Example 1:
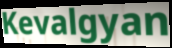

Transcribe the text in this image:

Kevalgyan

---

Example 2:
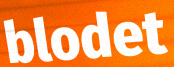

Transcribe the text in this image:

blodet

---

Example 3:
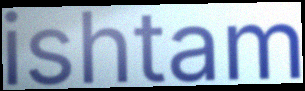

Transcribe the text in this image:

ishtam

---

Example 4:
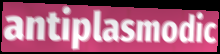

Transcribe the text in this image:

antiplasmodic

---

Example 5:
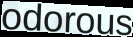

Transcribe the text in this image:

odorous